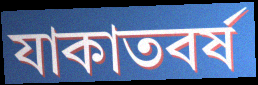
যাকাতবর্ষ